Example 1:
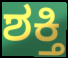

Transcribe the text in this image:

ಶಕ್ತಿ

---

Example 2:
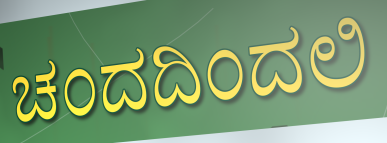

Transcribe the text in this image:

ಚಂದದಿಂದಲಿ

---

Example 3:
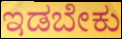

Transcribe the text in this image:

ಇಡಬೇಕು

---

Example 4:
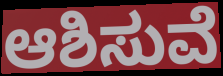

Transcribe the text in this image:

ಆಶಿಸುವೆ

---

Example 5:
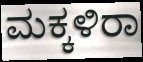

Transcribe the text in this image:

ಮಕ್ಕಳಿರಾ